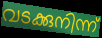
വടക്കുനിന്ന്